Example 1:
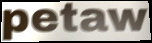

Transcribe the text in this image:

petaw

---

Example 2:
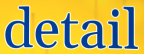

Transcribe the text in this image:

detail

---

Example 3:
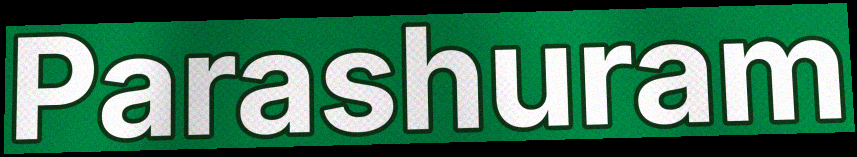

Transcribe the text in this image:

Parashuram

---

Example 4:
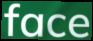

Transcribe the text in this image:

face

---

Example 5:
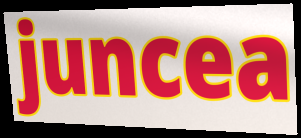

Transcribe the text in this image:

juncea